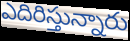
ఎదిరిస్తున్నారు